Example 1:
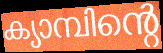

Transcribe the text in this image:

ക്യാമ്പിന്റെ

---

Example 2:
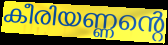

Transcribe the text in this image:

കീരിയണ്ണന്റെ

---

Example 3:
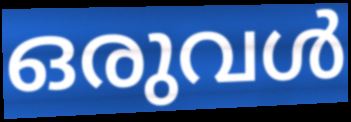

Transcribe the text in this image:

ഒരുവൾ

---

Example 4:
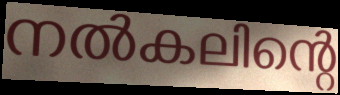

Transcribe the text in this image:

നൽകലിന്റെ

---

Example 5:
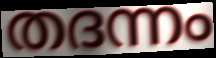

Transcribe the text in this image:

തദന്നം